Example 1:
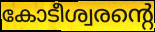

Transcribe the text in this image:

കോടീശ്വരന്റെ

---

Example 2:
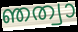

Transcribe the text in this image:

ഞത്വാ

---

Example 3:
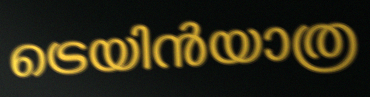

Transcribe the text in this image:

ട്രെയിൻയാത്ര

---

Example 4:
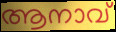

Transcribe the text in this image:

ആനാവ്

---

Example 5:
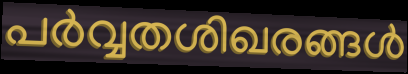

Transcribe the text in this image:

പർവ്വതശിഖരങ്ങൾ